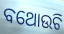
ବଥୋଉଚି